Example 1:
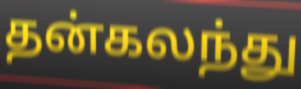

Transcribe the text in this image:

தன்கலந்து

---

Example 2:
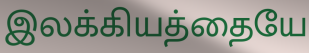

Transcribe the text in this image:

இலக்கியத்தையே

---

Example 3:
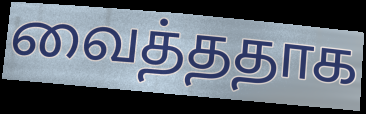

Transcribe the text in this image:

வைத்ததாக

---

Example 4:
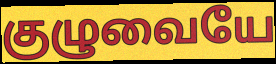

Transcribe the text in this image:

குழுவையே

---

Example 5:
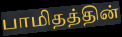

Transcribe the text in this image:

பாமிதத்தின்